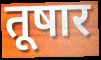
तूषार